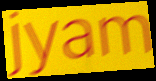
jyam